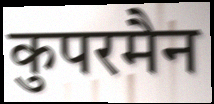
कुपरमैन